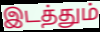
இடத்தும்